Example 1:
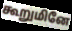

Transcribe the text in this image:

கூறுமினே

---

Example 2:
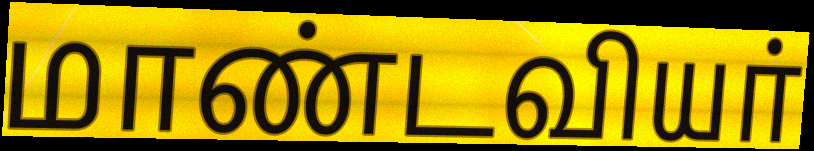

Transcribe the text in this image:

மாண்டவியர்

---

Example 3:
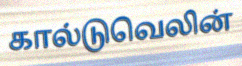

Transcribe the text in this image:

கால்டுவெலின்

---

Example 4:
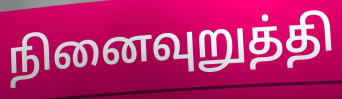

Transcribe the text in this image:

நினைவுறுத்தி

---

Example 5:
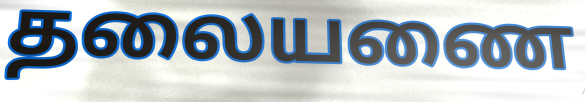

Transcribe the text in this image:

தலையணை